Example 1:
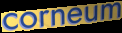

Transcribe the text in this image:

corneum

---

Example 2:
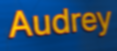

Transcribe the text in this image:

Audrey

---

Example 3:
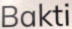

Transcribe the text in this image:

Bakti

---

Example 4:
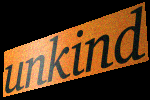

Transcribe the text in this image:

unkind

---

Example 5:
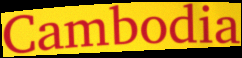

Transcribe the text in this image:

Cambodia